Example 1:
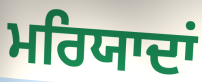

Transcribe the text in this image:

ਮਰਿਯਾਦਾਂ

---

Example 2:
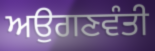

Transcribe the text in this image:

ਅਉਗਣਵੰਤੀ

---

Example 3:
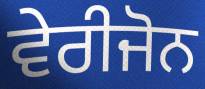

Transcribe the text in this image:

ਵੇਰੀਜੋਨ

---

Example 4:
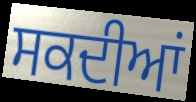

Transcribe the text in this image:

ਸਕਦੀਆਂ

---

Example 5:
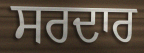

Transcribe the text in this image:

ਸਰਦਾਰ